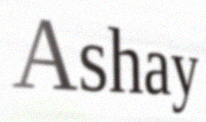
Ashay